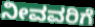
ನೀವವರಿಗೆ